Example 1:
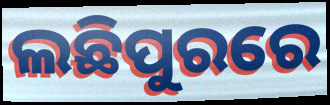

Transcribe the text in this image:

ଲଛିପୁରରେ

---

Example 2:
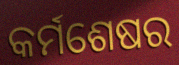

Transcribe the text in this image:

କର୍ମଶେଷର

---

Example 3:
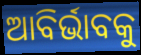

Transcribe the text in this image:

ଆବିର୍ଭାବକୁ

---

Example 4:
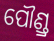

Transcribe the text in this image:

ପୌଣ୍ଡ୍ର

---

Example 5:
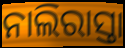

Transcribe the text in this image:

ନାଲିରାସ୍ତା